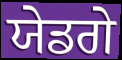
ਯੇਡਗੇ